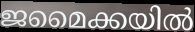
ജമൈക്കയിൽ